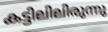
കട്ടിലിലിരുന്നു